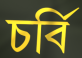
চৰ্বি